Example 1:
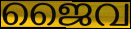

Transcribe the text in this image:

ജൈവ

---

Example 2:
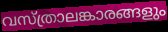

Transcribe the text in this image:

വസ്ത്രാലങ്കാരങ്ങളും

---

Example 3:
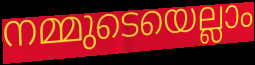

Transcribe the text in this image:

നമ്മുടെയെല്ലാം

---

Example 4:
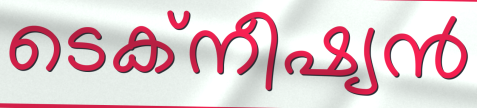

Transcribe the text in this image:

ടെക്നീഷ്യൻ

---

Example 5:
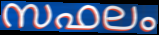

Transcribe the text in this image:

സഫലം